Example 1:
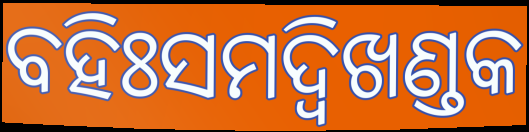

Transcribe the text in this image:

ବହିଃସମଦ୍ୱିଖଣ୍ଡକ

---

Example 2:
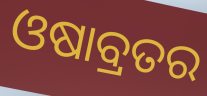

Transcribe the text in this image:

ଓଷାବ୍ରତର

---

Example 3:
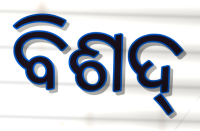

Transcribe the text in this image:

ବିଶଦ୍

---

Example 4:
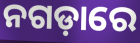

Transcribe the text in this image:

ନଗଡ଼ାରେ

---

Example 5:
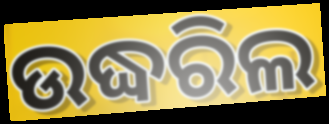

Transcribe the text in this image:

ଉଦ୍ଧରିଲ